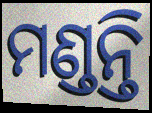
ମଣ୍ଡନ୍ତି